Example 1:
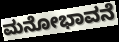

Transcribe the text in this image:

ಮನೋಭಾವನೆ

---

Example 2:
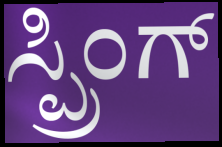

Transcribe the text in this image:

ಸ್ಪ್ರಿಂಗ್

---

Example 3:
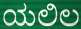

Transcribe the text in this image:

ಯಲಿಲ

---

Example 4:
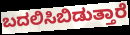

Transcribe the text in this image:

ಬದಲಿಸಿಬಿಡುತ್ತಾರೆ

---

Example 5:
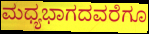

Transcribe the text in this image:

ಮಧ್ಯಭಾಗದವರೆಗೂ